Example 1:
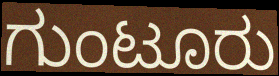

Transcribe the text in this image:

ಗುಂಟೂರು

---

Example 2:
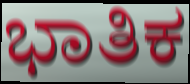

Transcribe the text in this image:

ಭಾತಿಕ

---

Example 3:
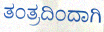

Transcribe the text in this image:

ತಂತ್ರದಿಂದಾಗಿ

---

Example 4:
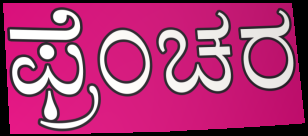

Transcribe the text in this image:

ಫ್ರೆಂಚರ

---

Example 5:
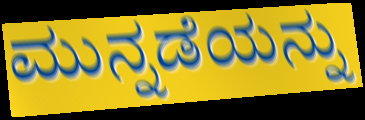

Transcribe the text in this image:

ಮುನ್ನಡೆಯನ್ನು